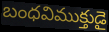
బంధవిముక్తుడై